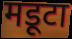
मडूटा